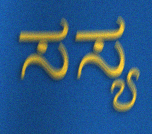
ಸಸ್ಯ